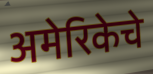
अमेरिकेचे